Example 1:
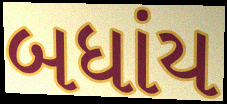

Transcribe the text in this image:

બધાંય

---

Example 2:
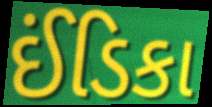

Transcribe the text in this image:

ઈંડિકા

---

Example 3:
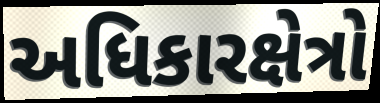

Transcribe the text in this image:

અધિકારક્ષેત્રો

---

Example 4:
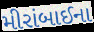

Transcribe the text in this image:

મીરાંબાઈના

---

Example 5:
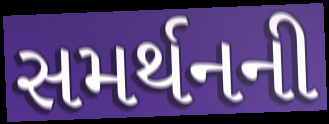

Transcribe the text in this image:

સમર્થનની